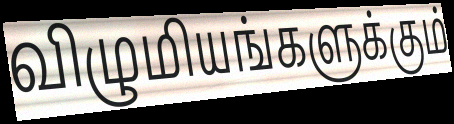
விழுமியங்களுக்கும்